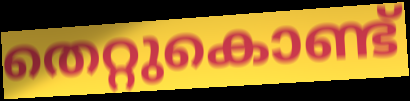
തെറ്റുകൊണ്ട്